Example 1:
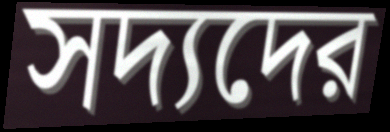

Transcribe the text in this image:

সদ্যদের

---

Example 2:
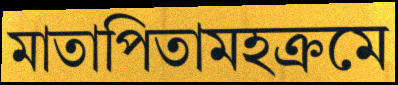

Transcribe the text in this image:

মাতাপিতামহক্রমে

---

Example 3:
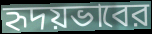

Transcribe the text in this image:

হৃদয়ভাবের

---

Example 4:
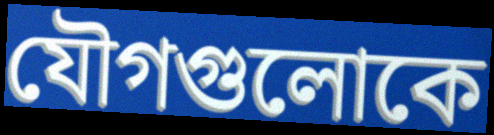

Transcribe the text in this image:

যৌগগুলোকে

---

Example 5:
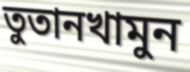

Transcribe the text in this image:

তুতানখামুন